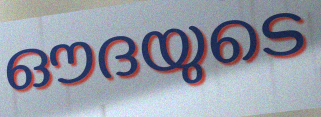
ഔദയുടെ